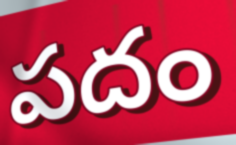
పదం